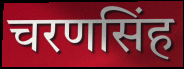
चरणसिंह